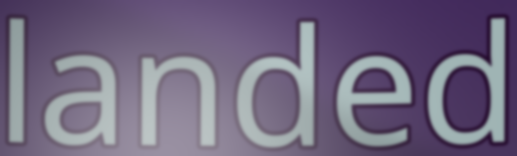
landed